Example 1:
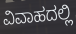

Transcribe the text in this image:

ವಿವಾಹದಲ್ಲಿ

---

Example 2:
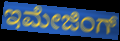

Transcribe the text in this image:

ಇಮೇಜಿಂಗ್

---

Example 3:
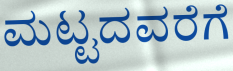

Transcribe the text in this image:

ಮಟ್ಟದವರೆಗೆ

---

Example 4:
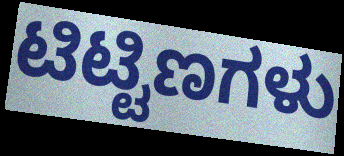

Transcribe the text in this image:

ಟಿಟ್ಟಿಣಗಳು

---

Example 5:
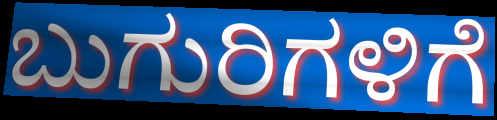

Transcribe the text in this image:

ಬುಗುರಿಗಳಿಗೆ